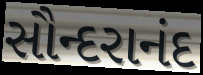
સૌન્દરાનંદ